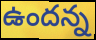
ఉందన్న